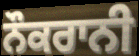
ਨੌਕਰਾਨੀ